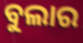
ବୁଲାର